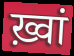
ख़्वां